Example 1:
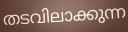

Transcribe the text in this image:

തടവിലാക്കുന്ന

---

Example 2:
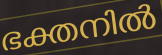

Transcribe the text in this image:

ഭക്തനിൽ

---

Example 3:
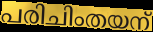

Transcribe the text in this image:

പരിചിംതയന്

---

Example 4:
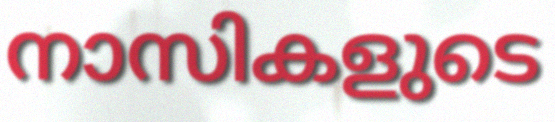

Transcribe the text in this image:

നാസികളുടെ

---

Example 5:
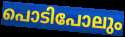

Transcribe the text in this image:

പൊടിപോലും